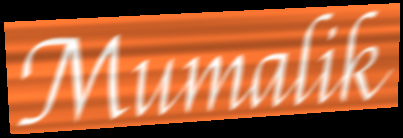
Mumalik